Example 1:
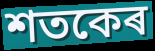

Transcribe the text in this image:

শতকেৰ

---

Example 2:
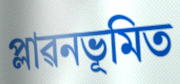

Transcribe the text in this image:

প্লাৱনভূমিত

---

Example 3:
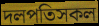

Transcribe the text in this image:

দলপতিসকল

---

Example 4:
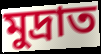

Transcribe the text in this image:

মুদ্ৰাত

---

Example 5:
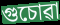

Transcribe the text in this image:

গুচোৱা